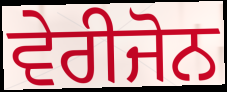
ਵੇਰੀਜੋਨ